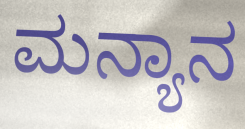
ಮನ್ಯಾನ